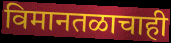
विमानतळाचाही